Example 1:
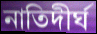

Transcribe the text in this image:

নাতিদীর্ঘ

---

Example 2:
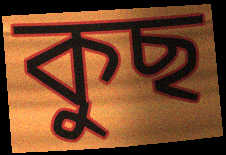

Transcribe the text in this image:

কুছ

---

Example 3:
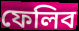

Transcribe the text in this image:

ফেলিব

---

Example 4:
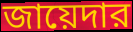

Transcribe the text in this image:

জায়েদার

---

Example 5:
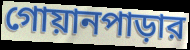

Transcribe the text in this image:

গোয়ানপাড়ার